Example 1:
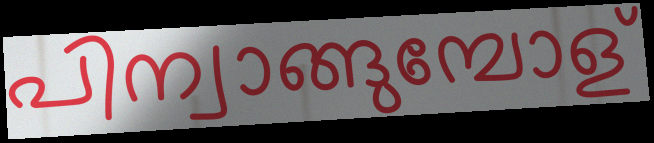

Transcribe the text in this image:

പിന്വാങ്ങുമ്പോള്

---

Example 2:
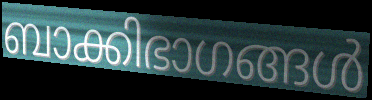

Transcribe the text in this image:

ബാക്കിഭാഗങ്ങൾ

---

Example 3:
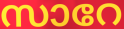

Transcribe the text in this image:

സാറേ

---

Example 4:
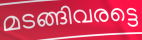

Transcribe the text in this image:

മടങ്ങിവരട്ടെ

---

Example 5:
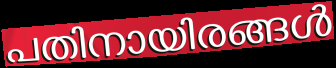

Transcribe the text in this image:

പതിനായിരങ്ങൾ